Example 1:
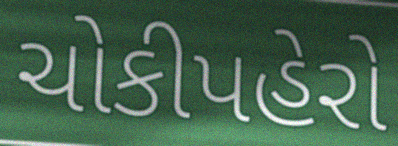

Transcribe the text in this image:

ચોકીપહેરો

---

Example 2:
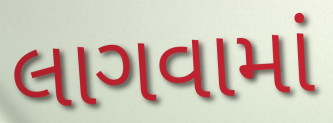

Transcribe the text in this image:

લાગવામાં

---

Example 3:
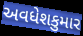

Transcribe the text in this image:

અવધેશકુમાર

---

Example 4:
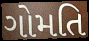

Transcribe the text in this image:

ગોમતિ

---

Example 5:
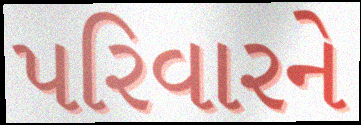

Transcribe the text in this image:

પરિવારને